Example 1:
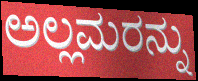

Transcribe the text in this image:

ಅಲ್ಲಮರನ್ನು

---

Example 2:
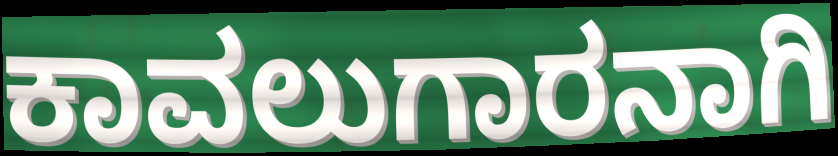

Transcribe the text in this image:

ಕಾವಲುಗಾರನಾಗಿ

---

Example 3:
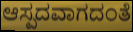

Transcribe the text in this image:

ಆಸ್ಪದವಾಗದಂತೆ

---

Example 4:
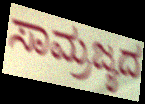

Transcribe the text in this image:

ಸಾಮ್ರಜ್ಯದ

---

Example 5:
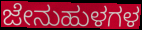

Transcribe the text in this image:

ಜೇನುಹುಳಗಳ